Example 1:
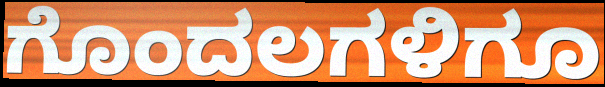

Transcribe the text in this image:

ಗೊಂದಲಗಳಿಗೂ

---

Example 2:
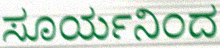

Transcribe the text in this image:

ಸೂರ್ಯನಿಂದ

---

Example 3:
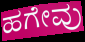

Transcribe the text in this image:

ಹಗೇವು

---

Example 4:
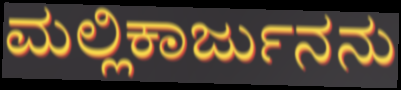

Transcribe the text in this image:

ಮಲ್ಲಿಕಾರ್ಜುನನು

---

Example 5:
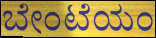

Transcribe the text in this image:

ಬೇಂಟೆಯಂ